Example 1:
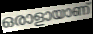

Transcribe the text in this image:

ഒരാളായാണ്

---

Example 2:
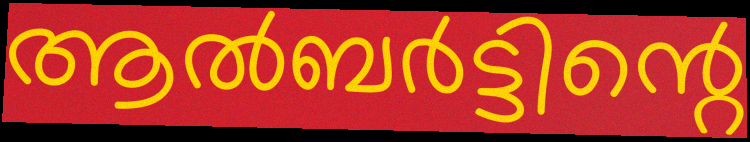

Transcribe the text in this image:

ആൽബർട്ടിന്റെ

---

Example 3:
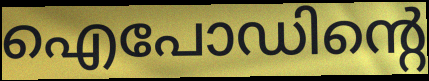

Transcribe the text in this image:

ഐപോഡിന്റെ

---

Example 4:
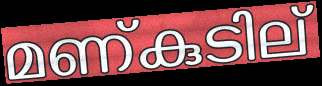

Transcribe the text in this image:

മണ്കുടില്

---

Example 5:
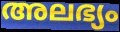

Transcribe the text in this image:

അലഭ്യം